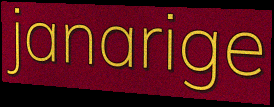
janarige